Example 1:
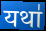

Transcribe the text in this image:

यथा॑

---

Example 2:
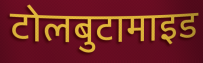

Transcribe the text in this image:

टोलबुटामाइड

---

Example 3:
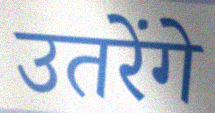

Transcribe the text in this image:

उतरेंगे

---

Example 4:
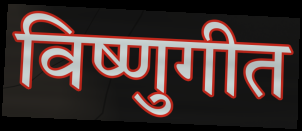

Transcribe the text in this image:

विष्णुगीत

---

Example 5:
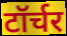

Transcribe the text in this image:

टॉर्चर